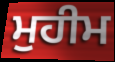
ਮੁਹੀਮ